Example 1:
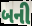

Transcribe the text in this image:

બની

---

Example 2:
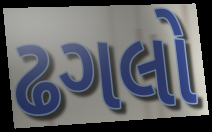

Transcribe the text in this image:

ઢગલો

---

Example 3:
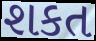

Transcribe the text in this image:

શકત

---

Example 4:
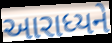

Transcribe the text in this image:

આરાધ્યને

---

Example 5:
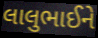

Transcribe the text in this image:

લાલુભાઈને